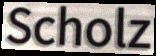
Scholz